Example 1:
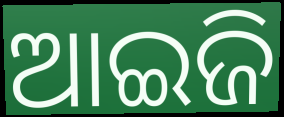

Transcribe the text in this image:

ଆଇଜି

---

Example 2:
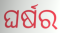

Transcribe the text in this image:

ଘର୍ଷର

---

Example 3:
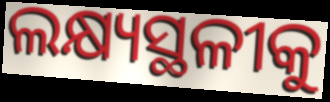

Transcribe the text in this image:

ଲକ୍ଷ୍ୟସ୍ଥଳୀକୁ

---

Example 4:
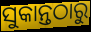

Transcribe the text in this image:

ସୁକାନ୍ତଠାରୁ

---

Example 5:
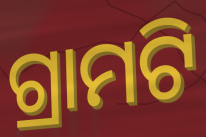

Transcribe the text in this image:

ଗ୍ରାମଟି